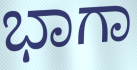
ಭಾಗಾ